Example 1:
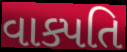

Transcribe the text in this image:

વાક્પતિ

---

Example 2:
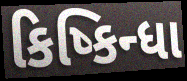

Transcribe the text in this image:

કિષ્કિન્ધા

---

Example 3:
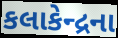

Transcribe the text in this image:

કલાકેન્દ્રના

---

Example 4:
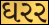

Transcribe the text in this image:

ઘરર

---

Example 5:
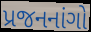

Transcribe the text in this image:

પ્રજનનાંગો